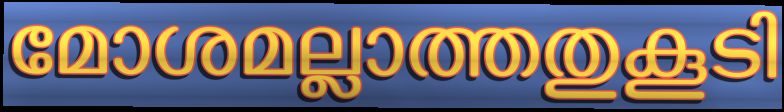
മോശമല്ലാത്തതുകൂടി